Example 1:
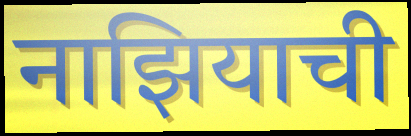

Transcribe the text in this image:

नाझियाची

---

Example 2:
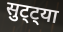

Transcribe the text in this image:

सुट्ट्या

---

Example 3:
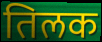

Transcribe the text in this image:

तिलक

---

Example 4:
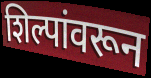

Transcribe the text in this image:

शिल्पांवरून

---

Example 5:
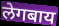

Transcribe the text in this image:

लेगबाय